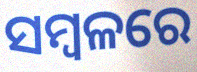
ସମ୍ବଳରେ